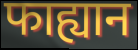
फाह्यान